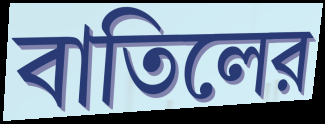
বাতিলের